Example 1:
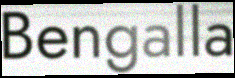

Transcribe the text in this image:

Bengalla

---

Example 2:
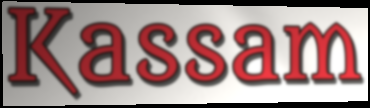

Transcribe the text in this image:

Kassam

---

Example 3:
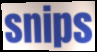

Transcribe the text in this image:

snips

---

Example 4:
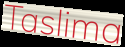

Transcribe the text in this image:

Taslima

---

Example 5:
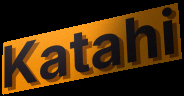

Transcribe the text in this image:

Katahi